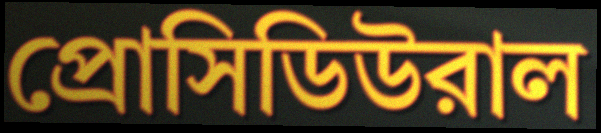
প্রোসিডিউরাল